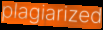
plagiarized